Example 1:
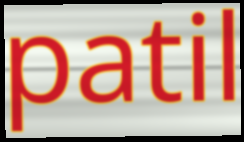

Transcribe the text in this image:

patil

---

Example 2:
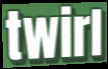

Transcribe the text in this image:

twirl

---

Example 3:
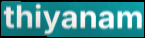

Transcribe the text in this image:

thiyanam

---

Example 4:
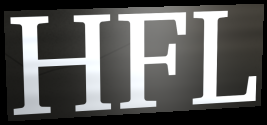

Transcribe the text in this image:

HFL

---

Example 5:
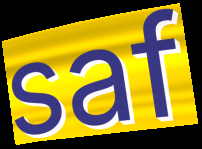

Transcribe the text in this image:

saf